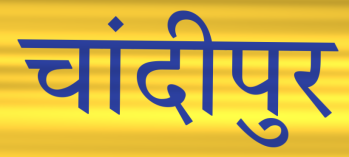
चांदीपुर